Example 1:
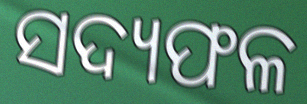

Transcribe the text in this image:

ସଦ୍ୟଫଳ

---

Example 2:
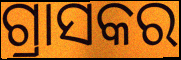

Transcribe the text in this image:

ଗ୍ରାସକର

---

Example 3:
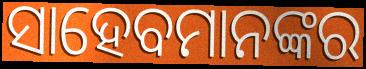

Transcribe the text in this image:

ସାହେବମାନଙ୍କର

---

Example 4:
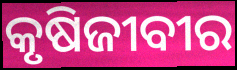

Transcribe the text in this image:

କୃଷିଜୀବୀର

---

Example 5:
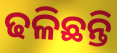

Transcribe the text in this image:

ଢଳିଛନ୍ତି